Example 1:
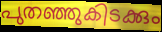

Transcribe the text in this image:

പുതഞ്ഞുകിടക്കും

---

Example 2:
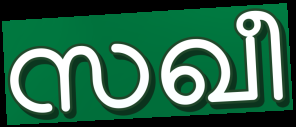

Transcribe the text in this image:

സഖീ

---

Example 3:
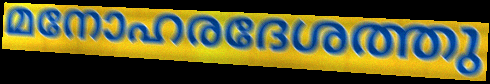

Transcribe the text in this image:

മനോഹരദേശത്തു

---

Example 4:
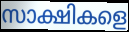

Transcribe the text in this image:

സാക്ഷികളെ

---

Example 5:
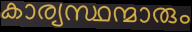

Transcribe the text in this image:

കാര്യസ്ഥന്മാരും